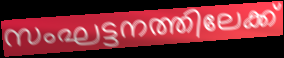
സംഘട്ടനത്തിലേക്ക്